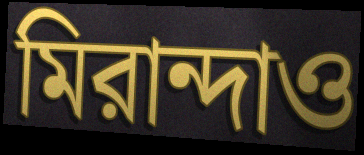
মিরান্দাও